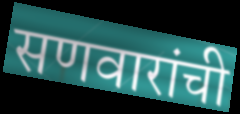
सणवारांची